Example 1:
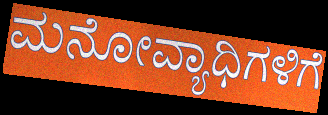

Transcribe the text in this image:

ಮನೋವ್ಯಾಧಿಗಳಿಗೆ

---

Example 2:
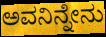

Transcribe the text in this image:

ಅವನಿನ್ನೇನು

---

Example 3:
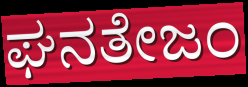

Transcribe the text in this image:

ಘನತೇಜಂ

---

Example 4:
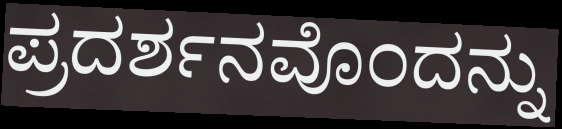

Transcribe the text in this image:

ಪ್ರದರ್ಶನವೊಂದನ್ನು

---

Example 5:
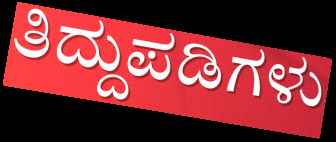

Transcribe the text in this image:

ತಿದ್ದುಪಡಿಗಳು